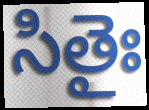
సితైః